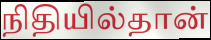
நிதியில்தான்